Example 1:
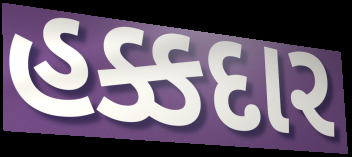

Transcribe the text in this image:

હક્કદાર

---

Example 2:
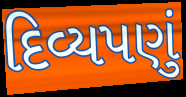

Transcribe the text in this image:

દિવ્યપણું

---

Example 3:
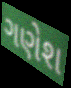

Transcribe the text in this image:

ગણેશ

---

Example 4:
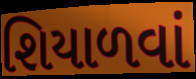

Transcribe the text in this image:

શિયાળવાં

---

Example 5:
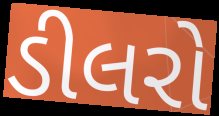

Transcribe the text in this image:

ડીલરો